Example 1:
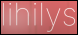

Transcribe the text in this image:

lihilys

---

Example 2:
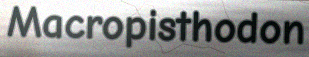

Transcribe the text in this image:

Macropisthodon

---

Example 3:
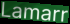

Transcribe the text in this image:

Lamarr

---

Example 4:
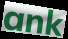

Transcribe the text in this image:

ank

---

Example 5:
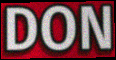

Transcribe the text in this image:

DON